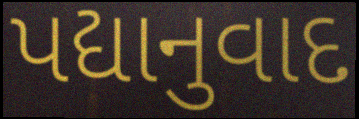
પદ્યાનુવાદ